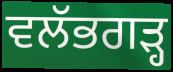
ਵਲੱਭਗੜ੍ਹ